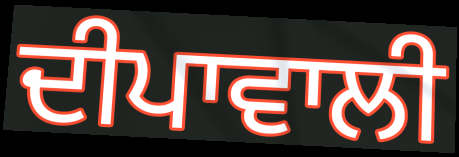
ਦੀਪਾਵਾਲੀ